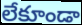
లేకూండా